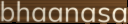
bhaanasa